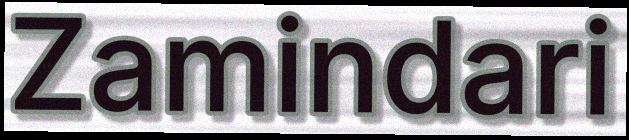
Zamindari